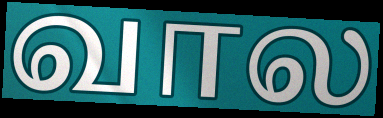
வால